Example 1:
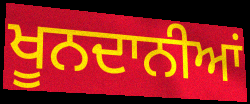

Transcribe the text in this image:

ਖੂਨਦਾਨੀਆਂ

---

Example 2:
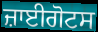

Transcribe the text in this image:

ਜ਼ਾਈਗੋਟਸ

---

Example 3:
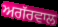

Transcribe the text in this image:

ਅਗੱਰਵਾਲ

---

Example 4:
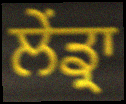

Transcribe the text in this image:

ਲੇਂਡ੍ਰਾ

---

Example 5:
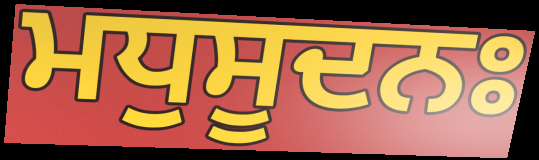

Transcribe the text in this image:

ਮਧੁਸੂਦਨਃ